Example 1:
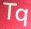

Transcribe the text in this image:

Tq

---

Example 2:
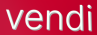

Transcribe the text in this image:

vendi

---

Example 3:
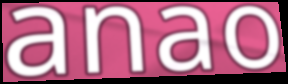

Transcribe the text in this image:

anao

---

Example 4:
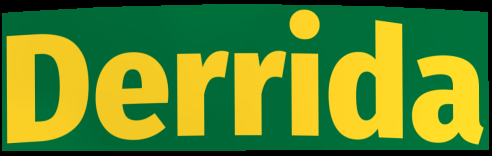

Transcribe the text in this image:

Derrida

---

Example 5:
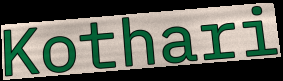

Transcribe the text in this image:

Kothari